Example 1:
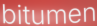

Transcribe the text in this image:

bitumen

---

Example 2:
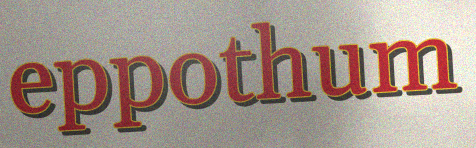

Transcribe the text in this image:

eppothum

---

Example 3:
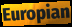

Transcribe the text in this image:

Europian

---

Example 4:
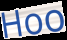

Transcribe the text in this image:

Hoo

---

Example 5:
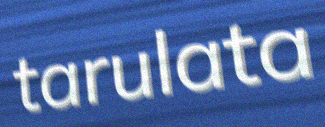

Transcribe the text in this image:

tarulata